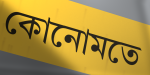
কোনোমতে